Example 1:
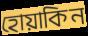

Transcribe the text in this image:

হোয়াকিন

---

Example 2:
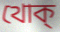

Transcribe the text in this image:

থোক্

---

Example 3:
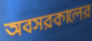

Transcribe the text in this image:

অবসরকালের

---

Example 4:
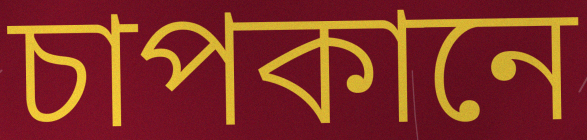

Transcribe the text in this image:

চাপকানে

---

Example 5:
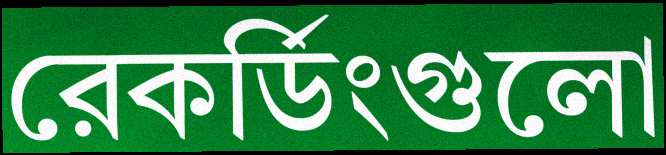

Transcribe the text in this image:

রেকর্ডিংগুলো